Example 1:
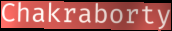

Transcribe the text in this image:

Chakraborty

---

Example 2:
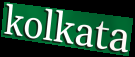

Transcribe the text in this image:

kolkata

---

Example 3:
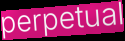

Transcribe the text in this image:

perpetual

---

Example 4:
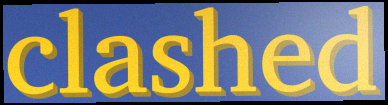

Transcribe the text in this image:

clashed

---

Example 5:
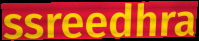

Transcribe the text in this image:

ssreedhra